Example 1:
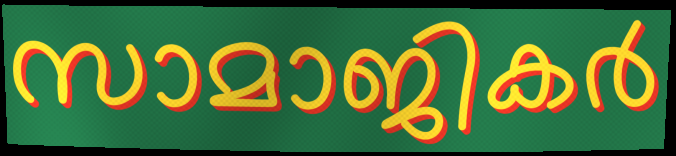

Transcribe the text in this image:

സാമാജികർ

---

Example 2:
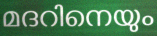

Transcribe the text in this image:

മദറിനെയും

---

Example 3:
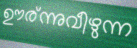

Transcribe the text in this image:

ഊര്ന്നുവീഴുന്ന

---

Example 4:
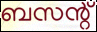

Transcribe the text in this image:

ബസന്റ്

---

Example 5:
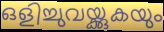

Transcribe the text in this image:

ഒളിച്ചുവയ്ക്കുകയും